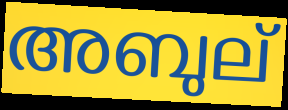
അബുല്